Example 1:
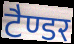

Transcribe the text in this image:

टैण्डर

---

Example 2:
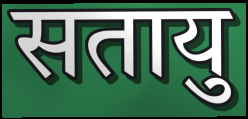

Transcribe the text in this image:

सतायु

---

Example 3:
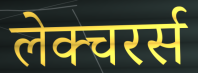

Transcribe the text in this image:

लेक्चरर्स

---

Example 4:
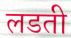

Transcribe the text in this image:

लडती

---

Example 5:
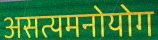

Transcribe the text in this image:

असत्यमनोयोग